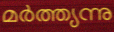
മർത്ത്യന്നു